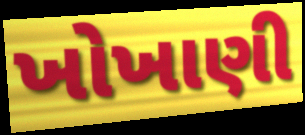
ખોખાણી